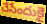
చేసేందుకై